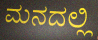
ಮನದಲ್ಲಿ